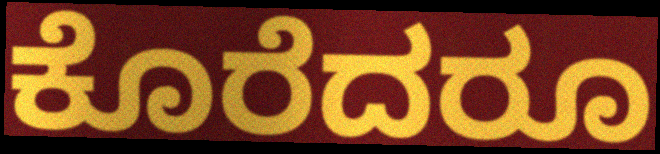
ಕೊರೆದರೂ